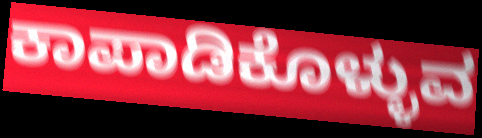
ಕಾಪಾಡಿಕೊಳ್ಳುವ